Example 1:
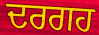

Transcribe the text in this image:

ਦਰਗਹ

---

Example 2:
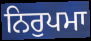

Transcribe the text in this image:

ਨਿਰੁਪਮਾ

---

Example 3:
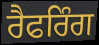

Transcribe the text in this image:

ਰੈਫਰਿੰਗ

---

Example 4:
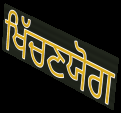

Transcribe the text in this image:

ਖਿੱਚਣਯੋਗ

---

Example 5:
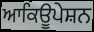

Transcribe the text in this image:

ਆਕਿਊਪੇਸ਼ਨ